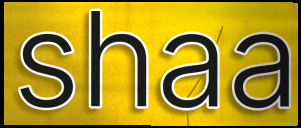
shaa